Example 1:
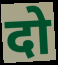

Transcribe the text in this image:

दो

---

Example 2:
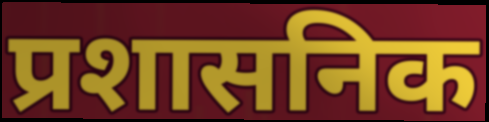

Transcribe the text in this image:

प्रशासनिक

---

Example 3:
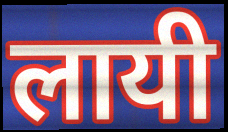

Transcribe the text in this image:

लायी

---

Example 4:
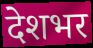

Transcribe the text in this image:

देशभर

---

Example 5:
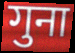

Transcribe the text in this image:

गुना